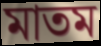
মাতম